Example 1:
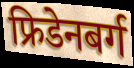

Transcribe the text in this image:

फ्रिडेनबर्ग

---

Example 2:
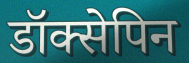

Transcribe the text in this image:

डॉक्सेपिन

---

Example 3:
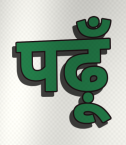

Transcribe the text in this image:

पढ़ूँ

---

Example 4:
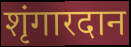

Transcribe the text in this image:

शृंगारदान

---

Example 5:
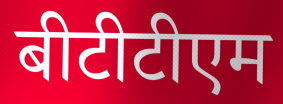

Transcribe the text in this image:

बीटीटीएम